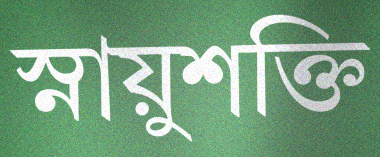
স্নায়ুশক্তি